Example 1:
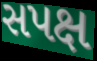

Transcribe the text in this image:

સપક્ષ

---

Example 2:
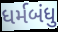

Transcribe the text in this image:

ધર્મબંધુ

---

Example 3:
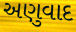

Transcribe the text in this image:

અણુવાદ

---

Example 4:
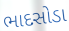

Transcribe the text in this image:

ભાદસોડા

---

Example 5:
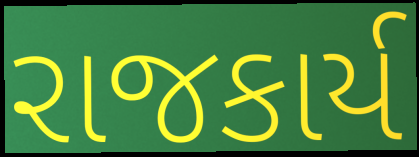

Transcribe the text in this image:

રાજકાર્ય